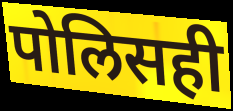
पोलिसही